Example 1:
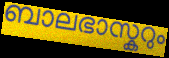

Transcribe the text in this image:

ബാലഭാസ്കറും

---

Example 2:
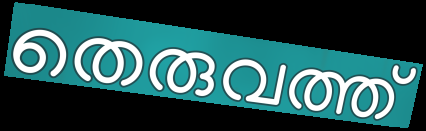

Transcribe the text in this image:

തെരുവത്ത്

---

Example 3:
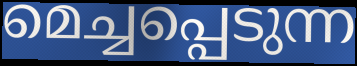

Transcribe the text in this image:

മെച്ചപ്പെടുന്ന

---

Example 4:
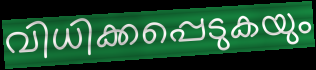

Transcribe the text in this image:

വിധിക്കപ്പെടുകയും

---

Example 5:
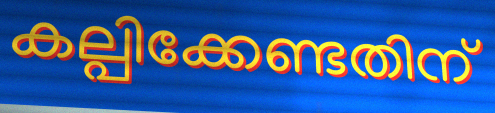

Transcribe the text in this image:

കല്പിക്കേണ്ടതിന്